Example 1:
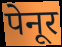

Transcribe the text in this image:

पेनूर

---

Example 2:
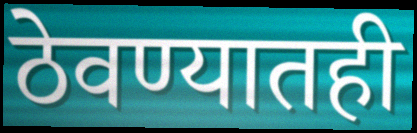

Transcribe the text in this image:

ठेवण्यातही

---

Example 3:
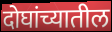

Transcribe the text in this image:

दोघांच्यातील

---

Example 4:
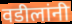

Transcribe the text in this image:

वडीलांनी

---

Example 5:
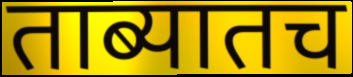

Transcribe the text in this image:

ताब्यातच